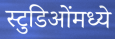
स्टुडिओंमध्ये